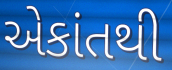
એકાંતથી